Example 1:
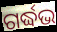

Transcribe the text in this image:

ଗର୍ଦ୍ଧଭ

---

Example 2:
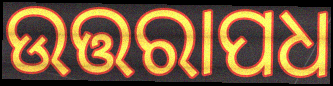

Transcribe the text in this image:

ଉତ୍ତରାପଧ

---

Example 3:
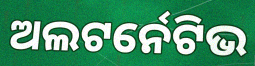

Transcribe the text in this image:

ଅଲଟର୍ନେଟିଭ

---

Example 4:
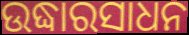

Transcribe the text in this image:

ଉଦ୍ଧାରସାଧନ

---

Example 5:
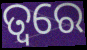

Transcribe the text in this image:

ତ୍ଵରେ